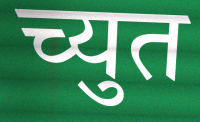
च्‍युत